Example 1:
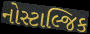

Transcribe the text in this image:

નોસ્ટાલ્જિક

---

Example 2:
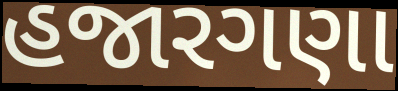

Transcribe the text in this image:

હજારગણા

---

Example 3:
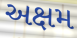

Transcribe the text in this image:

અક્ષમ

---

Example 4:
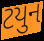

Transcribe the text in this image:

ટયુન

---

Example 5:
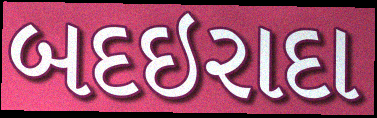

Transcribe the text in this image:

બદઇરાદા